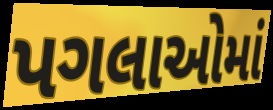
પગલાઓમાં